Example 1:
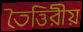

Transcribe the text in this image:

তৈত্তিরীয়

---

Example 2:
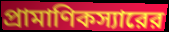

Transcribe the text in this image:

প্রামাণিকস্যারের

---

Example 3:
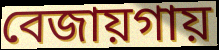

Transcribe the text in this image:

বেজায়গায়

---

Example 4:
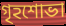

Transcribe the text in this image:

গৃহশোভা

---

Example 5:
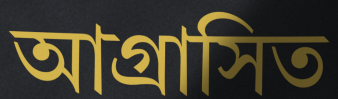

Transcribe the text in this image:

আগ্রাসিত